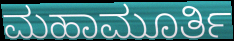
ಮಹಾಮೂರ್ತಿ